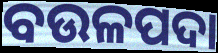
ବଉଳପଦା